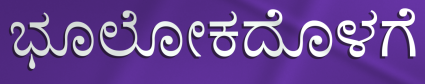
ಭೂಲೋಕದೊಳಗೆ